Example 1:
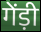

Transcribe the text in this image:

गेंड़ी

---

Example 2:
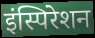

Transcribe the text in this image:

इंस्पिरेशन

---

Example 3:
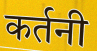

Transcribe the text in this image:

कर्तनी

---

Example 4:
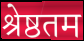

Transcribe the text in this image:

श्रेष्ठतम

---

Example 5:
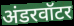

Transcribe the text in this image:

अंडरवॉटर